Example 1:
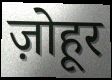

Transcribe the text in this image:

ज़ोहूर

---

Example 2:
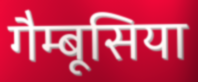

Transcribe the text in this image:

गैम्बूसिया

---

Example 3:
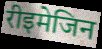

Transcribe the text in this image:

रीइमेजिन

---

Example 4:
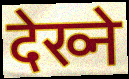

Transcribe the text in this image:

देख्ने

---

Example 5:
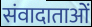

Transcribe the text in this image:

संवादाताओं